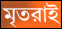
মৃতরাই